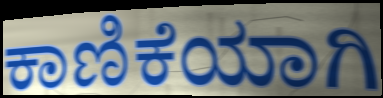
ಕಾಣಿಕೆಯಾಗಿ